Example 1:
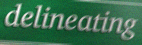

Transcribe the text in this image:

delineating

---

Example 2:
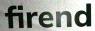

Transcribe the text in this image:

firend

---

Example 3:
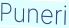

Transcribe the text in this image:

Puneri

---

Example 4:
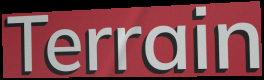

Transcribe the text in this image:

Terrain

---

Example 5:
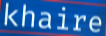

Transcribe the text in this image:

khaire